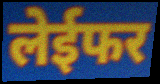
लेईफर